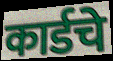
कार्डचे